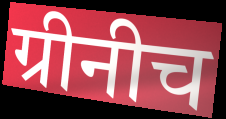
ग्रीनीच